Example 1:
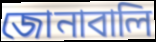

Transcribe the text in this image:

জোনাবালি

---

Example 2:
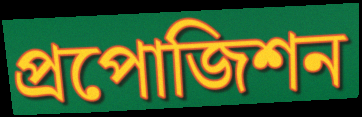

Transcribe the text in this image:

প্রপোজিশন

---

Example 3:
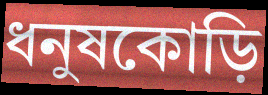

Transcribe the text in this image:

ধনুষকোড়ি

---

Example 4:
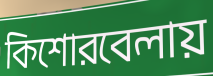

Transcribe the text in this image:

কিশোরবেলায়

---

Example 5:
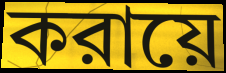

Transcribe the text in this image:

করায়ে